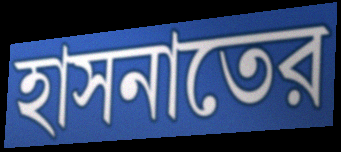
হাসনাতের